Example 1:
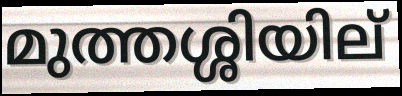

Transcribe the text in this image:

മുത്തശ്ശിയില്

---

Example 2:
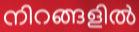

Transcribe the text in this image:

നിറങ്ങളിൽ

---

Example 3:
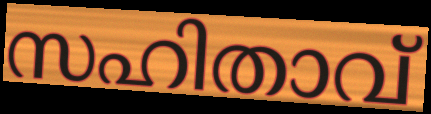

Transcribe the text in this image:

സഹിതാവ്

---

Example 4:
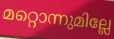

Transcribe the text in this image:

മറ്റൊന്നുമില്ലേ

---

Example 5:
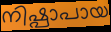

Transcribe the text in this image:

നിഷ്പാപായ